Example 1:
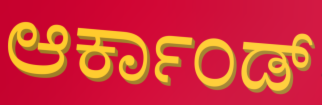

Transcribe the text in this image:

ಆರ್ಕಾಂಡ್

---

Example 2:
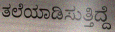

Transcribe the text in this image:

ತಲೆಯಾಡಿಸುತ್ತಿದ್ದೆ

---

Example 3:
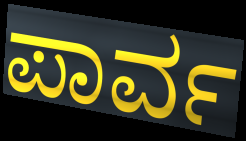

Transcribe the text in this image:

ಪಾರ್ವ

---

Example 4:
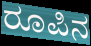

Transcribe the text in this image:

ರೂಪಿನ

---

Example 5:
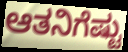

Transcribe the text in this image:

ಆತನಿಗೆಷ್ಟು